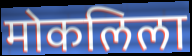
मोकलिला